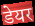
डेयर